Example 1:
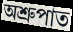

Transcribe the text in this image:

অশ্রুপাত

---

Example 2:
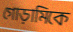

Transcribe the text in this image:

গোড়ামিকে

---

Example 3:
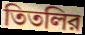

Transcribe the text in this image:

তিতলির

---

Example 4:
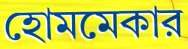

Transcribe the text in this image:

হোমমেকার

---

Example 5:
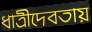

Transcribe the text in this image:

ধাত্রীদেবতায়